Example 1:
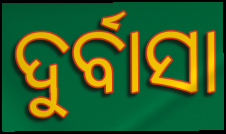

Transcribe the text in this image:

ଦୁର୍ବାସା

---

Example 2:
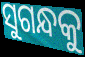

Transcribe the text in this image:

ସୁଗନ୍ଧକୁ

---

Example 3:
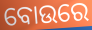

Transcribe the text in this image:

ବୋଉରେ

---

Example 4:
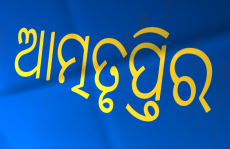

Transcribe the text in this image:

ଆତ୍ମତୃପ୍ତିର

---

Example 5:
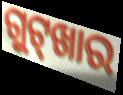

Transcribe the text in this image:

ଗୁଟ୍‌ଖାର